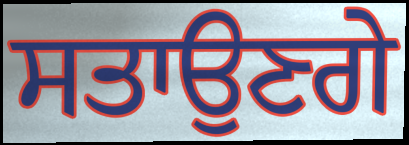
ਸਤਾਉਣਗੇ